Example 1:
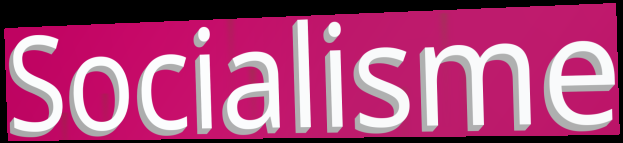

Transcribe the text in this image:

Socialisme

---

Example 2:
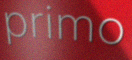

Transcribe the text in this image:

primo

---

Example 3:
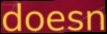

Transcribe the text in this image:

doesn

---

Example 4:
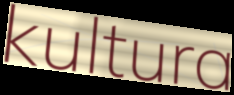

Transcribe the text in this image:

kultura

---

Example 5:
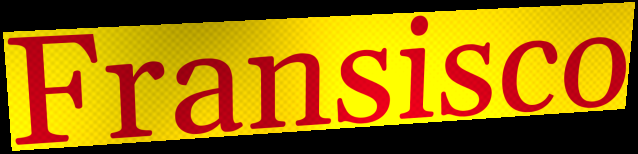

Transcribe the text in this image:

Fransisco